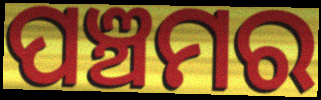
ପଞ୍ଚମର